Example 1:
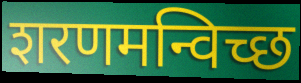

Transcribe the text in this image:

शरणमन्विच्छ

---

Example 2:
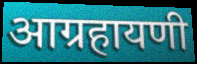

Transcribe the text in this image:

आग्रहायणी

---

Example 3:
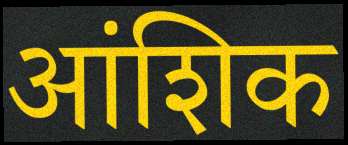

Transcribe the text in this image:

आंशिक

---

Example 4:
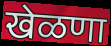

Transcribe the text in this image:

खेळणा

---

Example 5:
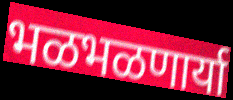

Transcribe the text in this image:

भळभळणार्या